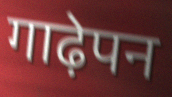
गाढ़ेपन